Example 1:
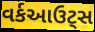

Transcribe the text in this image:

વર્કઆઉટ્સ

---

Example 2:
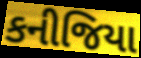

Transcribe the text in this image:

કનીજિયા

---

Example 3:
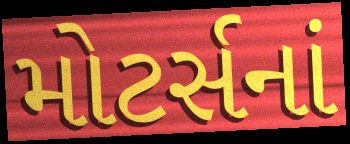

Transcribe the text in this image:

મોટર્સનાં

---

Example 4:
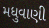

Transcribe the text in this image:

મધુવાણી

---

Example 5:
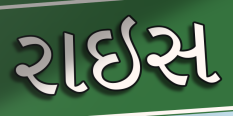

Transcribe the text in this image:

રાઇસ